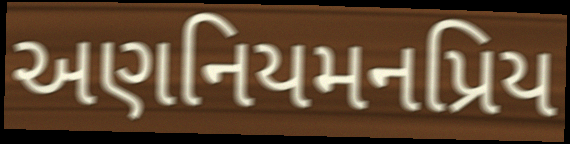
અણનિયમનપ્રિય